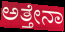
ಅತ್ತೇನಾ